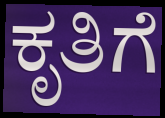
ಕೃತಿಗೆ